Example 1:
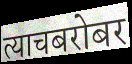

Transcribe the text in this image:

त्याचबरोबर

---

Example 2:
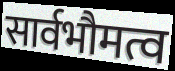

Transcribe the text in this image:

सार्वभौमत्व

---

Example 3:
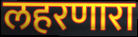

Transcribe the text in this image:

लहरणारा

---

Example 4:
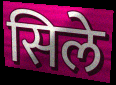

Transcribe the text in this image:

सिले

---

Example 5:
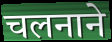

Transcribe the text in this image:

चलनाने